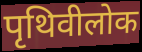
पृथिवीलोक